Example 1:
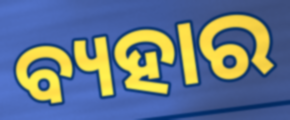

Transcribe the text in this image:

ବ୍ୟହାର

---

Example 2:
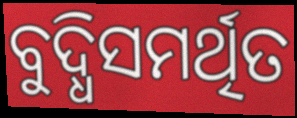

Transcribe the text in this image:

ବୁଦ୍ଧିସମର୍ଥିତ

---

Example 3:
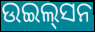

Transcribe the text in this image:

ଉଇଲ୍‌ସନ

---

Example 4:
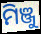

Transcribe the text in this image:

ମିଞ୍ଜୁ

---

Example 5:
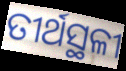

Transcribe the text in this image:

ତୀର୍ଥସ୍ଥଳୀ